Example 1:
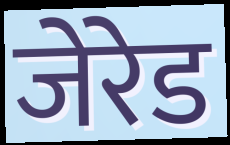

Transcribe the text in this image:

जेरेड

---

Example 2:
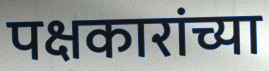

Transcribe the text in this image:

पक्षकारांच्या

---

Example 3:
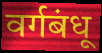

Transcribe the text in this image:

वर्गबंधू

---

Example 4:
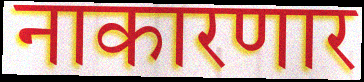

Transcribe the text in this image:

नाकारणार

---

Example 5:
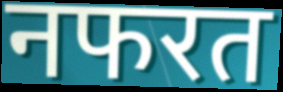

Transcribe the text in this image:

नफरत